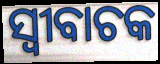
ସ୍ବୀବାଚକ